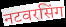
नटवरसिंग